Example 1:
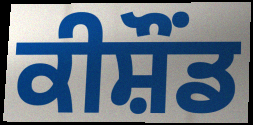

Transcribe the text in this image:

ਕੀਸ਼ੌਂਡ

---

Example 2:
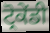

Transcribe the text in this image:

ਟ੍ਰੋਕੇਂਡੀ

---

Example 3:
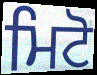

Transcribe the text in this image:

ਮਿਟੋ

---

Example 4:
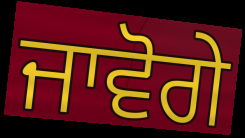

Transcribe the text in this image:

ਜਾਵੋਗੇ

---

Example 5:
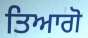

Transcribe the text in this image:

ਤਿਆਗੋ